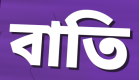
বাতি